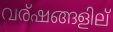
വര്ഷങ്ങളില്